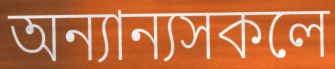
অন্যান্যসকলে